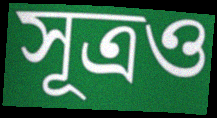
সূত্রও